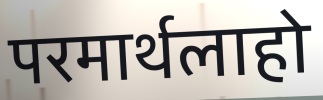
परमार्थलाहो